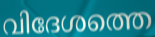
വിദേശത്തെ